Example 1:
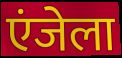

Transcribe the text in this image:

एंजेला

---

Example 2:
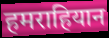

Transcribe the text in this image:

हमराहियान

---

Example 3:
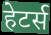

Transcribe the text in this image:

हेटर्स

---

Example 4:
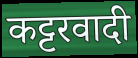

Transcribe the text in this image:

कट्टरवादी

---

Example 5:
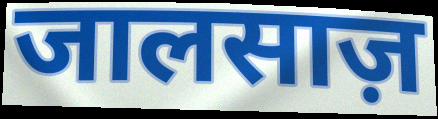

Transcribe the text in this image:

जालसाज़